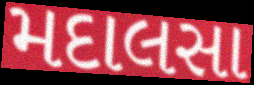
મદાલસા